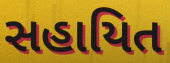
સહાયિત